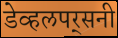
डेव्हलपर्सनी